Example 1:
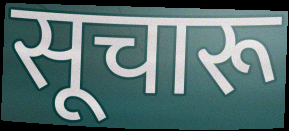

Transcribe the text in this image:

सूचारू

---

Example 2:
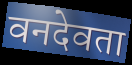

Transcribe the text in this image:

वनदेवता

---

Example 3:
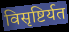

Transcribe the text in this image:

विसृष्टिर्यत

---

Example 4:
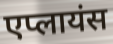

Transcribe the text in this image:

एप्लायंस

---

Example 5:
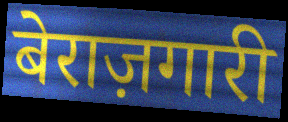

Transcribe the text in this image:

बेराज़गारी